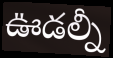
ఊడల్నీ